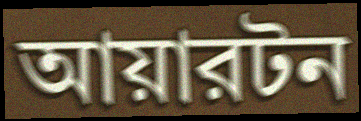
আয়ারটন